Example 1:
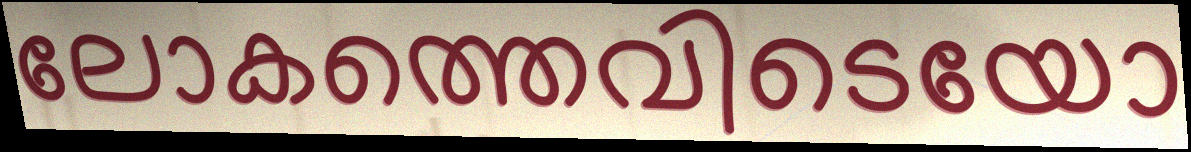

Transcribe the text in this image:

ലോകത്തെവിടെയോ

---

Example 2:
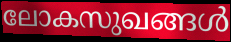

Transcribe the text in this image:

ലോകസുഖങ്ങൾ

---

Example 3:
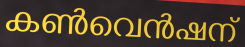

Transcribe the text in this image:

കൺവെൻഷന്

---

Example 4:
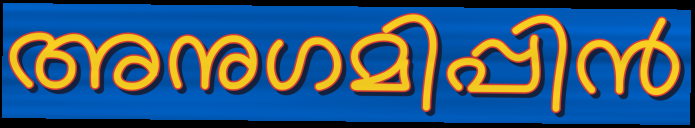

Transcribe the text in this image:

അനുഗമിപ്പിൻ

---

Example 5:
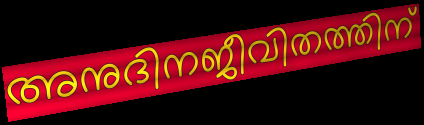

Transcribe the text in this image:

അനുദിനജീവിതത്തിന്